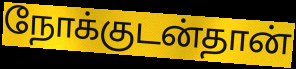
நோக்குடன்தான்